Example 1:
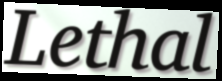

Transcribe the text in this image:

Lethal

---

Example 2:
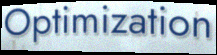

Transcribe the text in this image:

Optimization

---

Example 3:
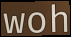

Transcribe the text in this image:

woh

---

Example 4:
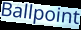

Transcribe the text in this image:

Ballpoint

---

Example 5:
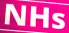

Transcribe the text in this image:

NHs